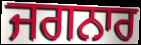
ਜਗਨਾਰ